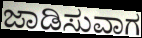
ಜಾಡಿಸುವಾಗ